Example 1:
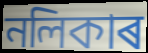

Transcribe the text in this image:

নলিকাৰ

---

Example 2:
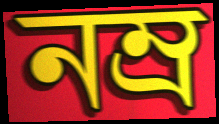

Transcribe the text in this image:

নম্ৰ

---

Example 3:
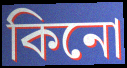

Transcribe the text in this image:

কিনো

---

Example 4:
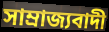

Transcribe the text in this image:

সাম্ৰাজ্যবাদী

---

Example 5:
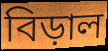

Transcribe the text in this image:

বিড়াল